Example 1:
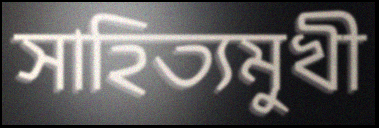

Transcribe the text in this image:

সাহিত্যমুখী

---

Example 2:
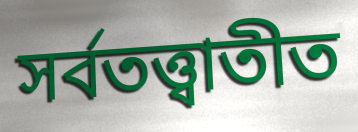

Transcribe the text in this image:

সর্বতত্ত্বাতীত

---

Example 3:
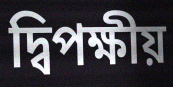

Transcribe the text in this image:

দ্বিপক্ষীয়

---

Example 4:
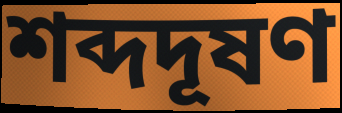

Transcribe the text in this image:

শব্দদূষণ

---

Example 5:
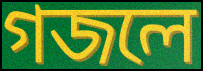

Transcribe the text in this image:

গজলে